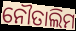
ନୌତାଲିମ